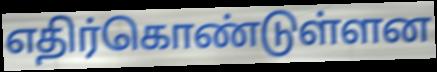
எதிர்கொண்டுள்ளன